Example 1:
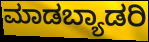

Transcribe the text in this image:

ಮಾಡಬ್ಯಾಡರಿ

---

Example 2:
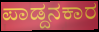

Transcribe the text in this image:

ಪಾಡ್ದನಕಾರ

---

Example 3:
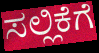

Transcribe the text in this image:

ಸಲ್ಲಿಕೆಗೆ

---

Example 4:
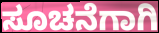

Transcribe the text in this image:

ಸೂಚನೆಗಾಗಿ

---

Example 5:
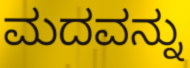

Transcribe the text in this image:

ಮದವನ್ನು